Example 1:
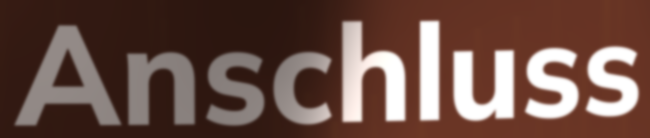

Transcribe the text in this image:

Anschluss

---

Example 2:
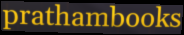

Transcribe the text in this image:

prathambooks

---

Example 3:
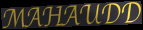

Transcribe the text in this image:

MAHAUDD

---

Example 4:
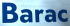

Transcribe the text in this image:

Barac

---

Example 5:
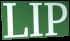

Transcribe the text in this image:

LIP